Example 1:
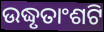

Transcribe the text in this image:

ଉଦ୍ଧୃତାଂଶଟି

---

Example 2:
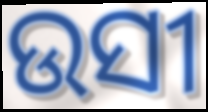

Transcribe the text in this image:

ଉସୀ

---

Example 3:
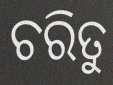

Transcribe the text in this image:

ଚରିତୁ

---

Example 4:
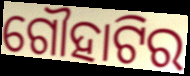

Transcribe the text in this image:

ଗୌହାଟିର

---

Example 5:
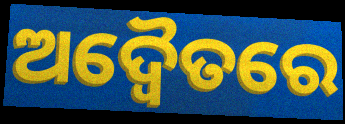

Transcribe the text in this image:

ଅଦ୍ୱୈତରେ